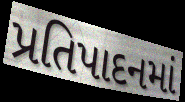
પ્રતિપાદનમાં